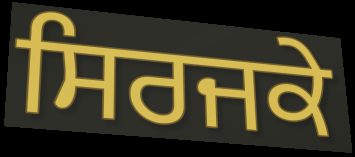
ਸਿਰਜਕੇ